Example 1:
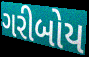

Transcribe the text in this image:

ગરીબોય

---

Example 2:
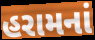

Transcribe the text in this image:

હરામનાં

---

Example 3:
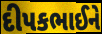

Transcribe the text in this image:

દીપકભાઈને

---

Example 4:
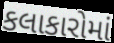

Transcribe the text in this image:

કલાકારોમાં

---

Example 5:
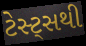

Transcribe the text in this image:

ટેસ્ટ્સથી